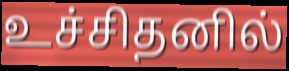
உச்சிதனில்